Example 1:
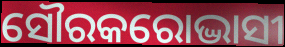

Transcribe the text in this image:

ସୌରକରୋଦ୍ଭାସୀ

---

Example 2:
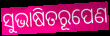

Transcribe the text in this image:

ସୁଭାଷିତରୂପେଣ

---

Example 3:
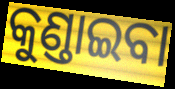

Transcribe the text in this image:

କୁଣ୍ଡାଇବା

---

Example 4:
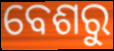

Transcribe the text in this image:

ବେଶରୁ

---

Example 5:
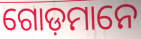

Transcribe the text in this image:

ଗୋଡ଼ମାନେ